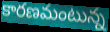
కారణమంటున్న